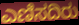
ಎಣಿಸದಿರು